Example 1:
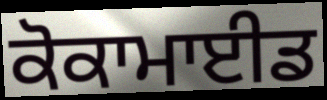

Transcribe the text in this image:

ਕੋਕਾਮਾਈਡ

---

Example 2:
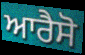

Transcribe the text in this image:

ਆਰੈਸੋ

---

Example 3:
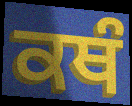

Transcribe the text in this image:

ਕਥੰ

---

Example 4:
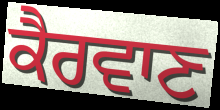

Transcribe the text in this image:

ਕੈਰਵਾਣ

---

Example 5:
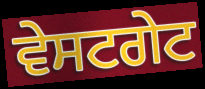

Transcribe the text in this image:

ਵੇਸਟਗੇਟ